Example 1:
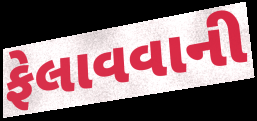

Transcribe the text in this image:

ફેલાવવાની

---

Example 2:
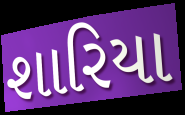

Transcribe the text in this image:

શારિયા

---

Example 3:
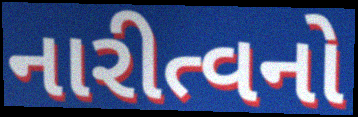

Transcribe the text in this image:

નારીત્વનો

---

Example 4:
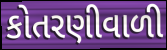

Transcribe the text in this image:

કોતરણીવાળી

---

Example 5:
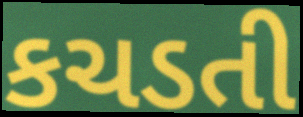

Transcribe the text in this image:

કચડતી